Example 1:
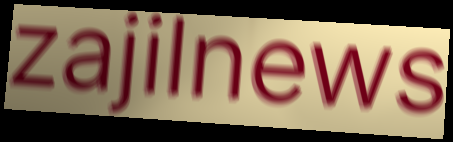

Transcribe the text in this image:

zajilnews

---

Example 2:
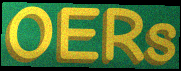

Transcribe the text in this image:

OERs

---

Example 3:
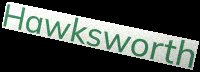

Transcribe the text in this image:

Hawksworth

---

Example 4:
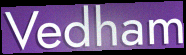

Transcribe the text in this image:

Vedham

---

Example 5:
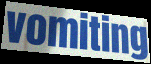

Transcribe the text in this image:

vomiting